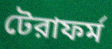
টেরাফর্ম